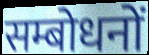
सम्बोधनों